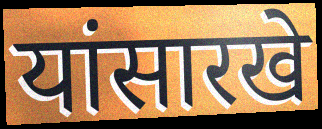
यांसारखे